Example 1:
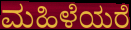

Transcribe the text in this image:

ಮಹಿಳೆಯರೆ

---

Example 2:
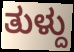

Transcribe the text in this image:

ತುಳ್ದು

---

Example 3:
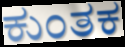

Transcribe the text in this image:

ಕುಂತಕ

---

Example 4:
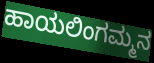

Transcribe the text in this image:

ಹಾಯಲಿಂಗಮ್ಮನ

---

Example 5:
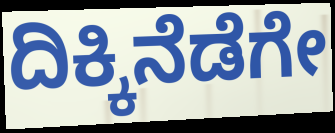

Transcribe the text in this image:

ದಿಕ್ಕಿನೆಡೆಗೇ